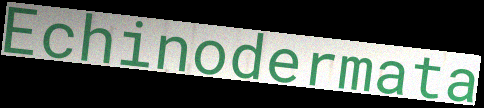
Echinodermata